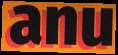
anu